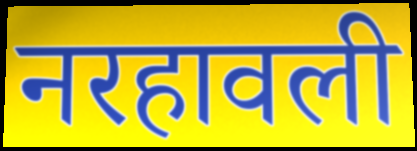
नरहावली